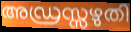
അഡ്രസ്സഴുതി